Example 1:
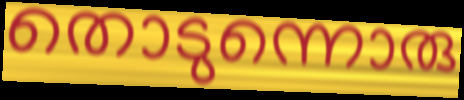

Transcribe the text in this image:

തൊടുന്നൊരു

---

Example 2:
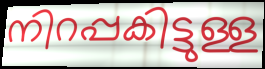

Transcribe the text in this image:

നിറപ്പകിട്ടുള്ള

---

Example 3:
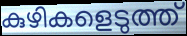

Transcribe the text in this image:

കുഴികളെടുത്ത്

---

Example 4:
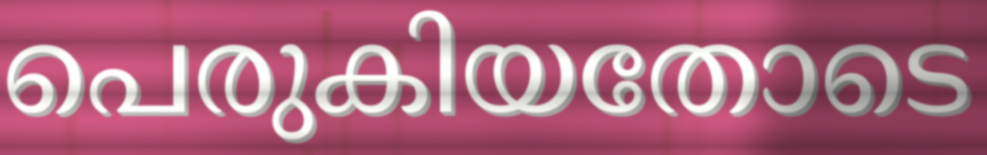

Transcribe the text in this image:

പെരുകിയതോടെ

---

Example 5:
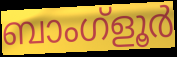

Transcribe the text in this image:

ബാംഗ്ളൂർ